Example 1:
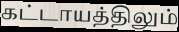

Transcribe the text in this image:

கட்டாயத்திலும்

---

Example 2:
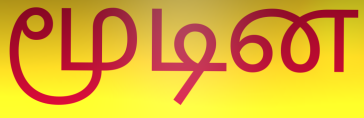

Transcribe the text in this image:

மூடின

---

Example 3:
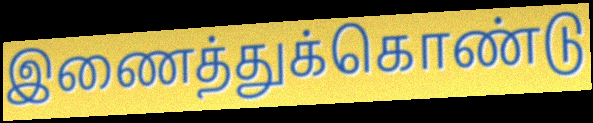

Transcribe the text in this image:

இணைத்துக்கொண்டு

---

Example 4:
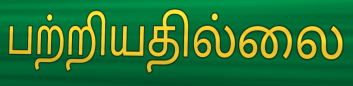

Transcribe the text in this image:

பற்றியதில்லை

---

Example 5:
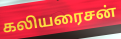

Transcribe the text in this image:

கலியரைசன்